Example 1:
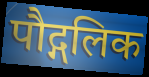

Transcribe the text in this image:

पौद्गलिक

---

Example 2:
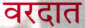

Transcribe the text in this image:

वरदात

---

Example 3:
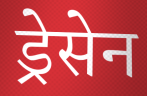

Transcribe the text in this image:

ड्रेसेन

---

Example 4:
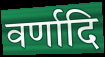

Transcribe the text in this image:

वर्णादि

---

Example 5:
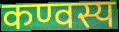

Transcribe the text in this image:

कण्वस्य